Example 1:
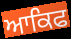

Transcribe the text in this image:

ਆਕਿਫ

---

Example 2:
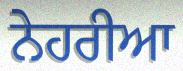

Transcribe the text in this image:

ਨੇਹਰੀਆ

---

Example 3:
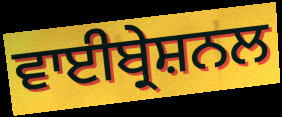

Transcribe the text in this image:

ਵਾਈਬ੍ਰੇਸ਼ਨਲ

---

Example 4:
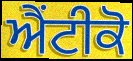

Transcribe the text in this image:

ਐਂਟੀਕੋ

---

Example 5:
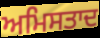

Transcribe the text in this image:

ਅਮਿਸਤਾਦ